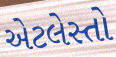
એટલેસ્તો